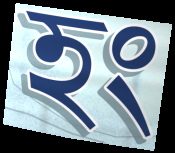
হং